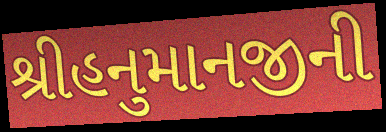
શ્રીહનુમાનજીની